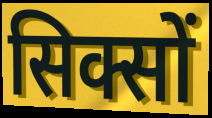
सिक्सों